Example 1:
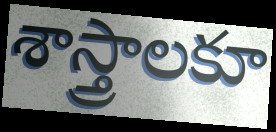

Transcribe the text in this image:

శాస్త్రాలకూ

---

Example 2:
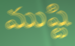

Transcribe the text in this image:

ముష్టి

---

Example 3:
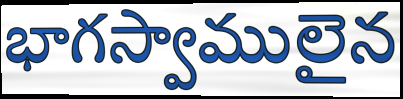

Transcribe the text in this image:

భాగస్వాములైన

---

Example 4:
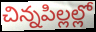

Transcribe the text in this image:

చిన్నపిల్లల్లో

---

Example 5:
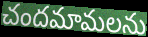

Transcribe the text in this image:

చందమామలను